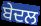
ਬੇਦਲ